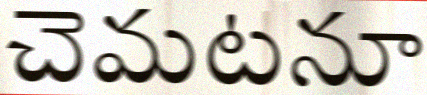
చెమటనూ